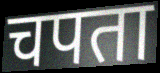
चपता